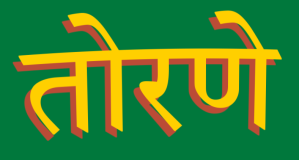
तोरणे